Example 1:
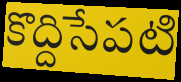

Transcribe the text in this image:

కొద్దిసేపటి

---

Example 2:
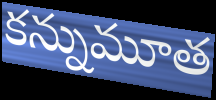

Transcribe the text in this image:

కన్నుమూత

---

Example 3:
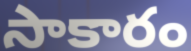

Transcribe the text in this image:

సాకారం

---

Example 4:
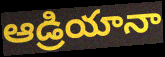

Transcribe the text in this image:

ఆడ్రియానా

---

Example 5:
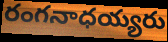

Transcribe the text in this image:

రంగనాధయ్యరు